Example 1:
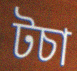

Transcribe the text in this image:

টচা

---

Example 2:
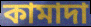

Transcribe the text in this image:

কামাদা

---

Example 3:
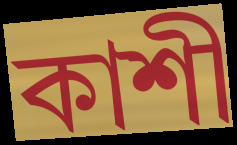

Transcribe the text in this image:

কাশী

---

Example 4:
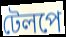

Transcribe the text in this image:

টেলপে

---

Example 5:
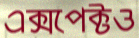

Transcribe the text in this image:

এক্সপেক্টও